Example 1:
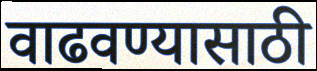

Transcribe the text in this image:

वाढवण्यासाठी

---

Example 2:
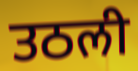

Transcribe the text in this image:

उठली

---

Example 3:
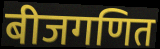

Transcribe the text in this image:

बीजगणित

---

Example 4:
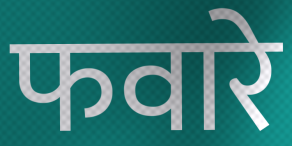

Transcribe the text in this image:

फवारे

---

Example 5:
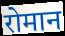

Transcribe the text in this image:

रोमान